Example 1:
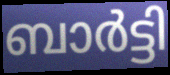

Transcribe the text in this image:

ബാർട്ടി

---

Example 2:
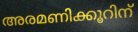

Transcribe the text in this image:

അരമണിക്കൂറിന്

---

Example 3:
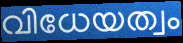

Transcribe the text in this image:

വിധേയത്വം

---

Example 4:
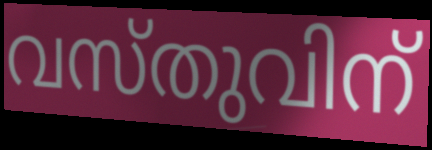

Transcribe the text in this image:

വസ്തുവിന്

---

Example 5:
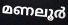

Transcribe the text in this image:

മണലൂർ